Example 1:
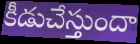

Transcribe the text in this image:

కీడుచేస్తుందా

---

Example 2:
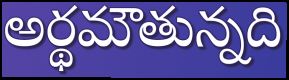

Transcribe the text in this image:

అర్థమౌతున్నది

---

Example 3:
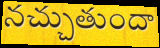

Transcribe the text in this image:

నచ్చుతుందా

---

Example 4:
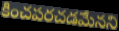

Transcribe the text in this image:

కించపరచడమేనని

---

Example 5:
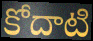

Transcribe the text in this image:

కోదాటి